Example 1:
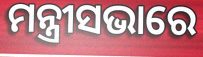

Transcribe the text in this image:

ମନ୍ତ୍ରୀସଭାରେ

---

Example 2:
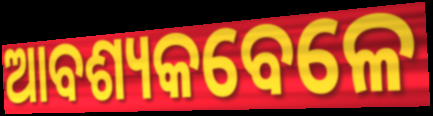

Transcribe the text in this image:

ଆବଶ୍ୟକବେଳେ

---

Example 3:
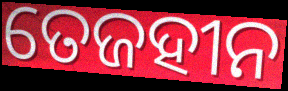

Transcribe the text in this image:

ତେଜହୀନ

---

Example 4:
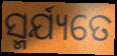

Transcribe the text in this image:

ସ୍ମର୍ଯ୍ୟତେ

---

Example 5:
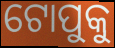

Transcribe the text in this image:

ଟୋପୁକୁ